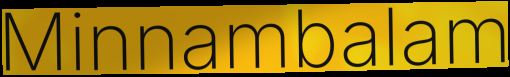
Minnambalam